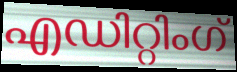
എഡിറ്റിംഗ്